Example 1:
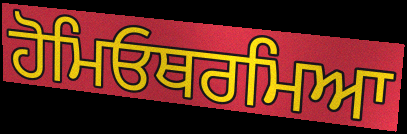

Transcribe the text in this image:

ਹੋਮਿਓਥਰਮਿਆ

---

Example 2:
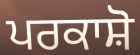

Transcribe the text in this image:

ਪਰਕਾਸ਼ੋ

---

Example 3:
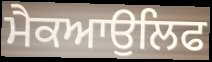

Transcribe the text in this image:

ਮੈਕਆਉਲਿਫ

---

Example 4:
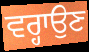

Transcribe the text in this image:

ਵਰ੍ਹਾਉਣ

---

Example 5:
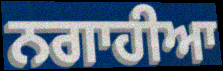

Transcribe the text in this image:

ਨਗਾਹੀਆ